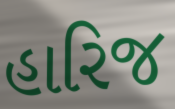
હારિજ